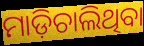
ମାଡ଼ିଚାଲିଥିବା